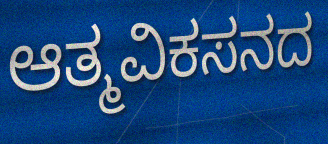
ಆತ್ಮವಿಕಸನದ